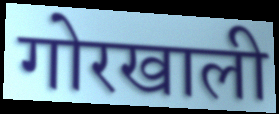
गोरखाली